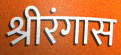
श्रीरंगास